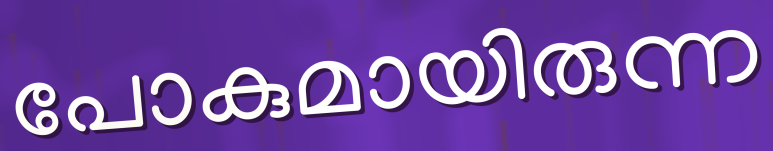
പോകുമായിരുന്ന